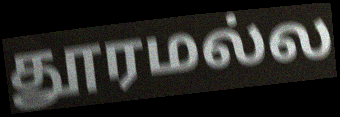
தூரமல்ல